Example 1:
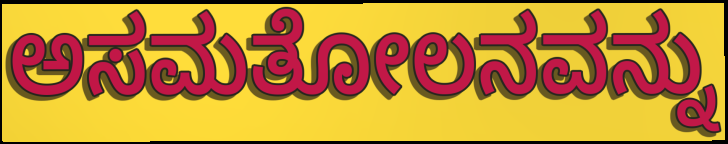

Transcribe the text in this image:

ಅಸಮತೋಲನವನ್ನು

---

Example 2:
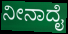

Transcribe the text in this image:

ನೀನಾದೈ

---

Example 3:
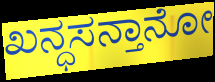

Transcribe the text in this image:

ಖನ್ಧಸನ್ತಾನೋ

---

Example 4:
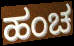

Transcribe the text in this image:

ಹಂಚ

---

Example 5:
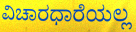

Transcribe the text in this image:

ವಿಚಾರಧಾರೆಯಲ್ಲ